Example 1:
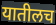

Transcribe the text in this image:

यातीलच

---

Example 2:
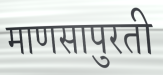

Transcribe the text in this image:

माणसापुरती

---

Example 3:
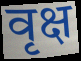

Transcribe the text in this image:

वृक्ष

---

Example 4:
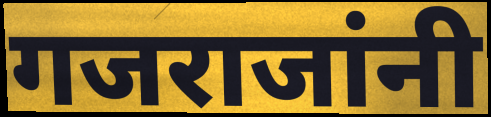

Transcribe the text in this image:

गजराजांनी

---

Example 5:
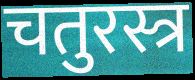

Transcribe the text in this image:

चतुरस्त्र